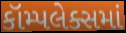
કૉમ્પલેક્સમાં